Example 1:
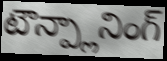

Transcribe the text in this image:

టౌన్ప్లానింగ్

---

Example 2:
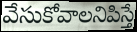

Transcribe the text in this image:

వేసుకోవాలనిపిస్తే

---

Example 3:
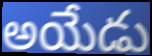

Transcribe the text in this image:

అయేడు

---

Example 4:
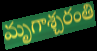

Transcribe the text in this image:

మృగాశ్చరంతి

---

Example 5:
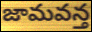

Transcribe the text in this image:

జామవన్త